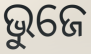
ଭୁଜେ